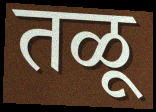
तळू